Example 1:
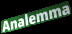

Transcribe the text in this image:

Analemma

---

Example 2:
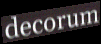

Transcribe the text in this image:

decorum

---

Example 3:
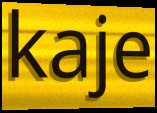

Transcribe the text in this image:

kaje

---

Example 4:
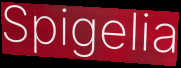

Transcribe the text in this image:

Spigelia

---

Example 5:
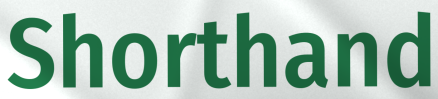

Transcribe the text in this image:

Shorthand